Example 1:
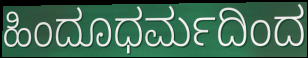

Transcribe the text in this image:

ಹಿಂದೂಧರ್ಮದಿಂದ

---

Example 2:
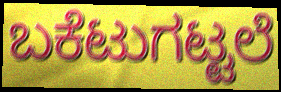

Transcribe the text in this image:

ಬಕೆಟುಗಟ್ಟಲೆ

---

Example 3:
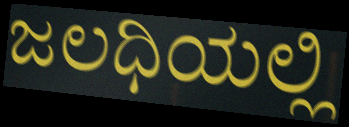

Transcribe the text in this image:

ಜಲಧಿಯಲ್ಲಿ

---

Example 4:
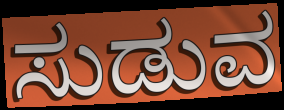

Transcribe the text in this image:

ಸುಡುವ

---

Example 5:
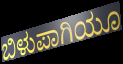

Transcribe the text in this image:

ಬಿಳುಪಾಗಿಯೂ